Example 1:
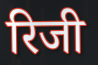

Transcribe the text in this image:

रिजी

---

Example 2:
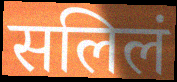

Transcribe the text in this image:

सलिलं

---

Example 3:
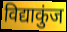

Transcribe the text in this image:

विद्याकुंज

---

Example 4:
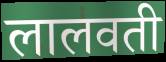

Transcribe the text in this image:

लालवती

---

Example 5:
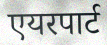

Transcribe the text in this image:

एयरपार्ट